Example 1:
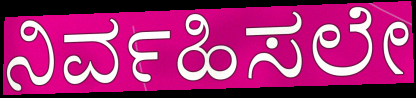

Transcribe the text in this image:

ನಿರ್ವಹಿಸಲೇ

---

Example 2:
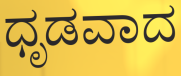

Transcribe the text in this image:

ಧೃಡವಾದ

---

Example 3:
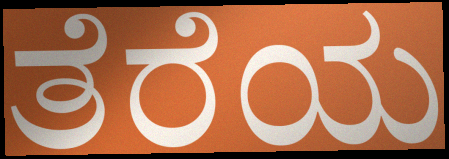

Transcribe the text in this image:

ತೆರೆಯ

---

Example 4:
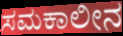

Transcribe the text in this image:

ಸಮಕಾಲೀನ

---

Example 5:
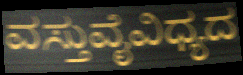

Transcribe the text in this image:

ವಸ್ತುವೈವಿಧ್ಯದ